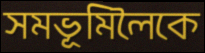
সমভূমিলৈকে